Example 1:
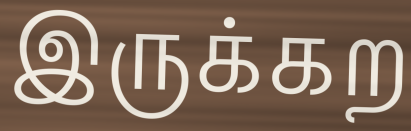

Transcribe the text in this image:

இருக்கற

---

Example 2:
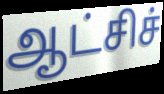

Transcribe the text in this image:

ஆட்சிச்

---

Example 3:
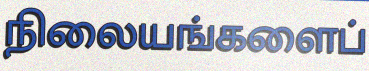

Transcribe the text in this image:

நிலையங்களைப்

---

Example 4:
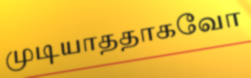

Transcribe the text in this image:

முடியாததாகவோ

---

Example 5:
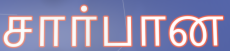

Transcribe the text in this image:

சார்பான